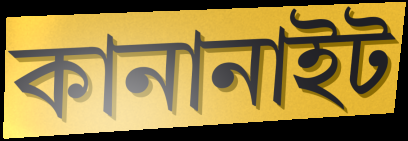
কানানাইট